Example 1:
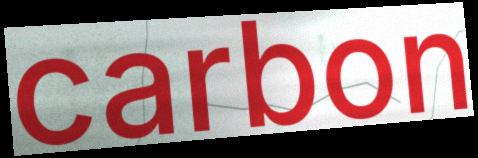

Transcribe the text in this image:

carbon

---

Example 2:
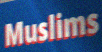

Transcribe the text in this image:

Muslims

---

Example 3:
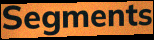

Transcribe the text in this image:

Segments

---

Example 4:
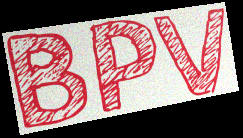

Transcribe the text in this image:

BPV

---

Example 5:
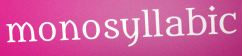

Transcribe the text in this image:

monosyllabic